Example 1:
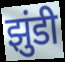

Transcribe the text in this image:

झुंडी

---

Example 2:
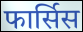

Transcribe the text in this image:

फार्सिस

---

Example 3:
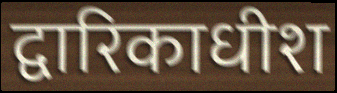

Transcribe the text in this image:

द्वारिकाधीश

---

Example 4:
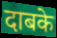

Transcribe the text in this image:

दाबके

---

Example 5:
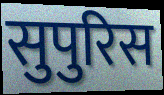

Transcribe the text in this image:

सुपुरिस